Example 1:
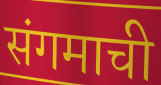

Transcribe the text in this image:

संगमाची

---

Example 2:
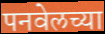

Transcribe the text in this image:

पनवेलच्या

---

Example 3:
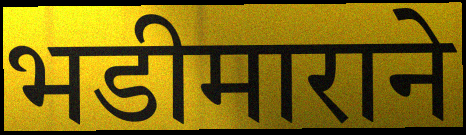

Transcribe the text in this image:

भडीमाराने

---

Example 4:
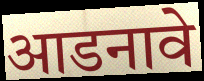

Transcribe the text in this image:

आडनावे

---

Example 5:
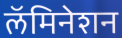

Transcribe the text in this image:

लॅमिनेशन